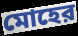
মোহের